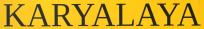
KARYALAYA